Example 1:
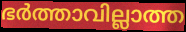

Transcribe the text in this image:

ഭർത്താവില്ലാത്ത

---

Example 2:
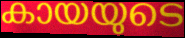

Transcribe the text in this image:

കായയുടെ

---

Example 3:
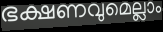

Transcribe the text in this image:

ഭക്ഷണവുമെല്ലാം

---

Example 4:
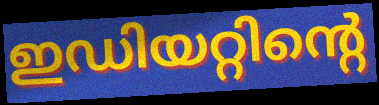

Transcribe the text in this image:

ഇഡിയറ്റിന്റെ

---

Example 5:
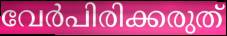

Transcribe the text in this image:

വേർപിരിക്കരുത്